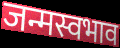
जन्मस्वभाव